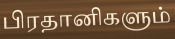
பிரதானிகளும்